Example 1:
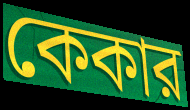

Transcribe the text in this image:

কেকার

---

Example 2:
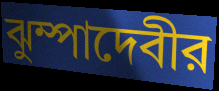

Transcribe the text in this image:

ঝুম্পাদেবীর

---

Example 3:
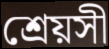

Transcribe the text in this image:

শ্রেয়সী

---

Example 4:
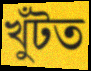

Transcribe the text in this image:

খুঁটত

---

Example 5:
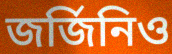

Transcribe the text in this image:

জর্জিনিও